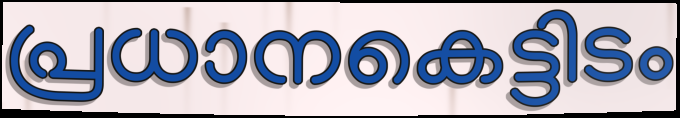
പ്രധാനകെട്ടിടം